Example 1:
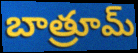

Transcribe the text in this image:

బాత్రూమ్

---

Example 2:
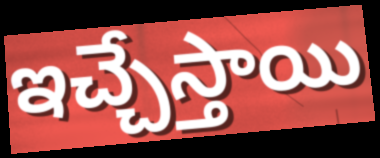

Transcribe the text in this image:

ఇచ్చేస్తాయి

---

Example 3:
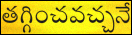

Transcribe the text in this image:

తగ్గించవచ్చనే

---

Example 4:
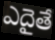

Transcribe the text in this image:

ఎదైతే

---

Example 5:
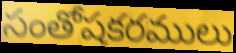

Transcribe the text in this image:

సంతోషకరములు